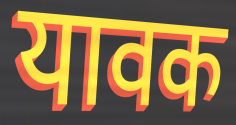
यावक